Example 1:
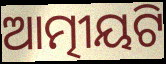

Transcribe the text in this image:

ଆତ୍ମୀୟଟି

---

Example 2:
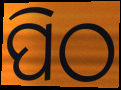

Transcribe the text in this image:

ପିଠ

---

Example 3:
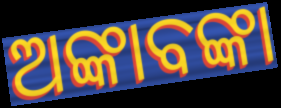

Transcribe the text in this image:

ଅଙ୍କାବଙ୍କା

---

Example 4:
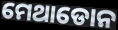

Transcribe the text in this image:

ମେଥାଡୋନ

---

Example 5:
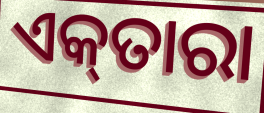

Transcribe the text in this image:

ଏକ୍‌ତାରା